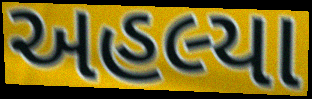
અહલ્યા